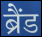
ब्रैंड